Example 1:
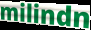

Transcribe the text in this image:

milindn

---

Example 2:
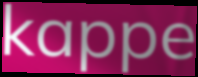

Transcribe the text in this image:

kappe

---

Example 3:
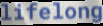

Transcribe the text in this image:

lifelong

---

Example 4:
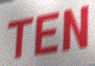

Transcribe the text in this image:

TEN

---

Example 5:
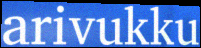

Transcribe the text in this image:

arivukku